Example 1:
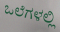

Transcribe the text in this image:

ಒಲೆಗಳಲ್ಲಿ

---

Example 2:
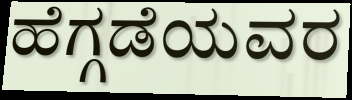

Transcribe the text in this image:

ಹೆಗ್ಗಡೆಯವರ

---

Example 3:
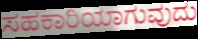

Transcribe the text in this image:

ಸಹಕಾರಿಯಾಗುವುದು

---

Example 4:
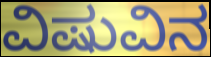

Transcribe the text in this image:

ವಿಷುವಿನ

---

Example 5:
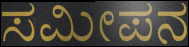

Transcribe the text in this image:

ಸಮೀಪನ